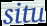
situ